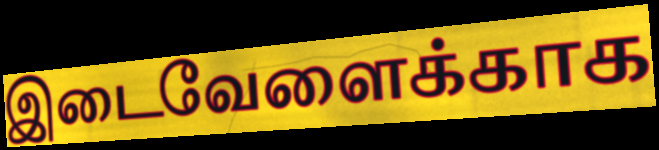
இடைவேளைக்காக